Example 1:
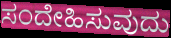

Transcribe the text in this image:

ಸಂದೇಹಿಸುವುದು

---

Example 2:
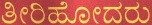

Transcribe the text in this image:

ತೀರಿಹೋದರು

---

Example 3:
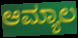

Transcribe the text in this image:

ಆಮ್ಯಾಲ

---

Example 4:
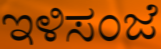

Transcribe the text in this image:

ಇಳಿಸಂಜೆ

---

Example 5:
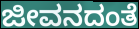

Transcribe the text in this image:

ಜೀವನದಂತೆ